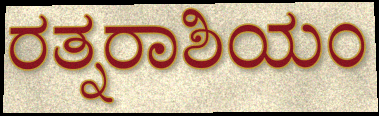
ರತ್ನರಾಶಿಯಂ